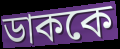
ডাককে